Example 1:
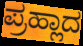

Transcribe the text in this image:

ಪ್ರಹ್ಲಾದ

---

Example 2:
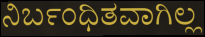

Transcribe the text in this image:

ನಿರ್ಬಂಧಿತವಾಗಿಲ್ಲ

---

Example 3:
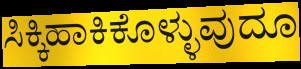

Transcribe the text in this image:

ಸಿಕ್ಕಿಹಾಕಿಕೊಳ್ಳುವುದೂ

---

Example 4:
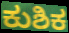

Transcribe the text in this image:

ಕುಶಿಕ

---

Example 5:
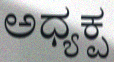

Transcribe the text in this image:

ಅಧ್ಯಕ್ಪ